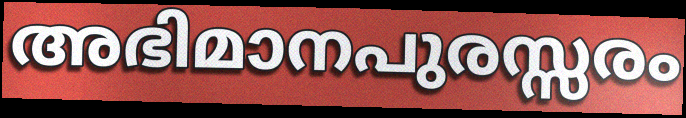
അഭിമാനപുരസ്സരം